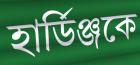
হার্ডিঞ্জকে